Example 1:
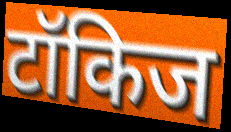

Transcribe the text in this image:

टॉकिज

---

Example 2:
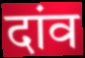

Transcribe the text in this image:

दांव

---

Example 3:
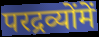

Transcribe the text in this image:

परद्रव्योंमें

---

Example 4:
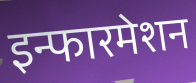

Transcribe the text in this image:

इन्फारमेशन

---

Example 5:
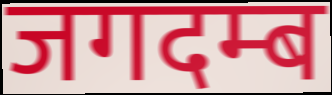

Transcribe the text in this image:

जगदम्ब